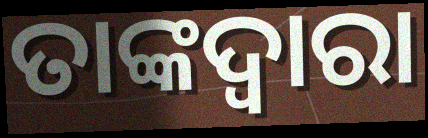
ତାଙ୍କଦ୍ଵାରା